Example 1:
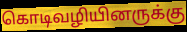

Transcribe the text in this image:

கொடிவழியினருக்கு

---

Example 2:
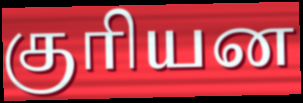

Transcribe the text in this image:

குரியன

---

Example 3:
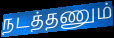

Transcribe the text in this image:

நடத்தணும்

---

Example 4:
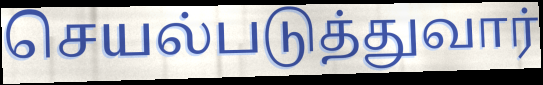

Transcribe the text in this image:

செயல்படுத்துவார்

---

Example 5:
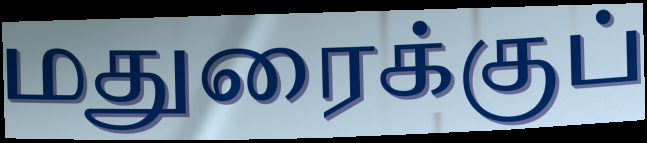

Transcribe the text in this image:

மதுரைக்குப்